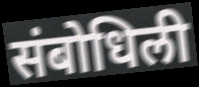
संबोधिली